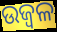
ଉଜ୍ବଳ